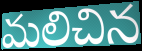
మలిచిన